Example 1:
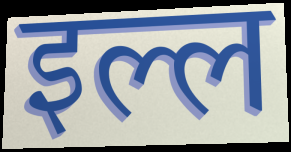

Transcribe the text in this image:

इल्ल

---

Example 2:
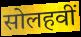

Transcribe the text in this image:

सोलहवीं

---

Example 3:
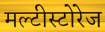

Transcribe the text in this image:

मल्टीस्टोरेज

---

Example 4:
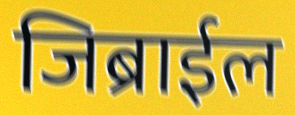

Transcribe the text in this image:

जिब्राईल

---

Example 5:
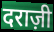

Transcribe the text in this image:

दराज़ी